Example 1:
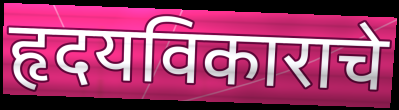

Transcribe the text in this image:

हृदयविकाराचे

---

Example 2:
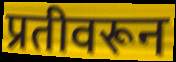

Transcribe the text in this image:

प्रतीवरून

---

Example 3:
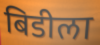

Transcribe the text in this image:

बिडीला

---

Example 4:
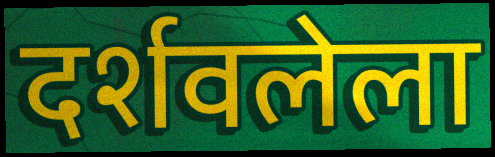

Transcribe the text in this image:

दर्शवलेला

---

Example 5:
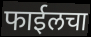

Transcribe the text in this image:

फाईलचा